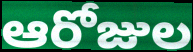
ఆరోజుల